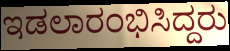
ಇಡಲಾರಂಭಿಸಿದ್ದರು